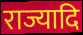
राज्यादि